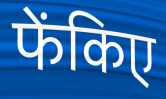
फेंकिए